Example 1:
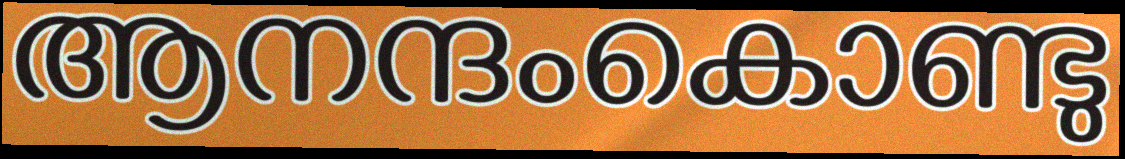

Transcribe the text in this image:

ആനന്ദംകൊണ്ടു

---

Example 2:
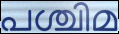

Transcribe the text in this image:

പശ്ചിമ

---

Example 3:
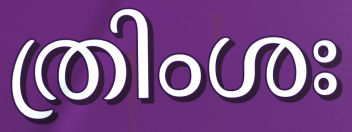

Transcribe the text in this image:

ത്രിംശഃ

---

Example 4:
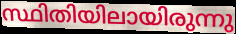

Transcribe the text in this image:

സ്ഥിതിയിലായിരുന്നു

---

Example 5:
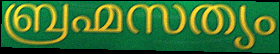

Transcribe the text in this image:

ബ്രഹ്മസത്യം